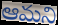
ఆమని